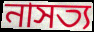
নাসত্য